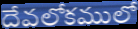
దేవలోకములో